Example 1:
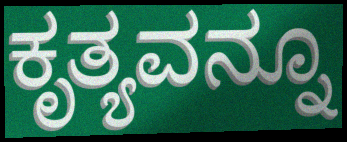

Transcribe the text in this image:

ಕೃತ್ಯವನ್ನೂ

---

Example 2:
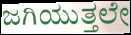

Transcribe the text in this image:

ಜಗಿಯುತ್ತಲೇ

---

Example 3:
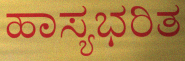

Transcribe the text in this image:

ಹಾಸ್ಯಭರಿತ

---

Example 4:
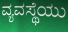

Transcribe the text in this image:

ವ್ಯವಸ್ಥೆಯು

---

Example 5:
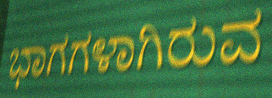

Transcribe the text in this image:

ಭಾಗಗಳಾಗಿರುವ